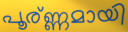
പൂര്ണ്ണമായി